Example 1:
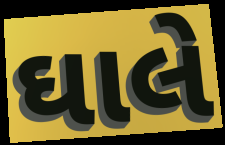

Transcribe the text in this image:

ઘાલે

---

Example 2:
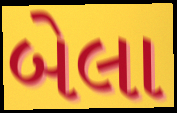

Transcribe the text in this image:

બેલા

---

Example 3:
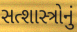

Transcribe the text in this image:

સત્શાસ્ત્રોનું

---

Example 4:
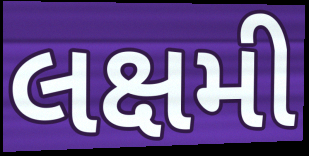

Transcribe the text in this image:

લક્ષમી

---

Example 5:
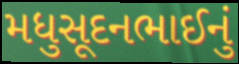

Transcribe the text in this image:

મધુસૂદનભાઈનું